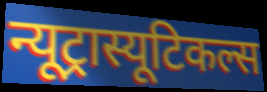
न्यूट्रास्यूटिकल्स